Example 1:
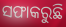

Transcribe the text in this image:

ସଫାକରୁଛି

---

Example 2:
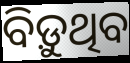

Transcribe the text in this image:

ବିଡ଼ୁଥିବ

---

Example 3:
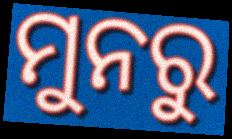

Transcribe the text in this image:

ମୁନରୁ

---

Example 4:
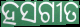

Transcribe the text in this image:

ହସଗୀତ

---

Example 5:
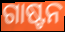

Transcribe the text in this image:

ଗାଷ୍ଟନ